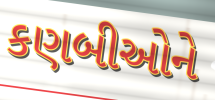
કણબીઓને